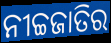
ନୀଚ୍ଚଜାତିର